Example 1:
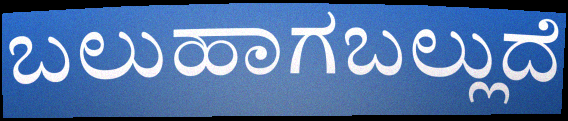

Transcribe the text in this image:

ಬಲುಹಾಗಬಲ್ಲುದೆ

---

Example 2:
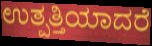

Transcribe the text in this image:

ಉತ್ಪತ್ತಿಯಾದರೆ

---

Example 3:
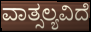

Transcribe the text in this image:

ವಾತ್ಸಲ್ಯವಿದೆ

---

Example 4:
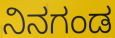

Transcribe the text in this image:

ನಿನಗಂಡ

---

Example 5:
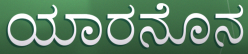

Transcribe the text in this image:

ಯಾರನೊನ